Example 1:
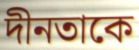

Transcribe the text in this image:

দীনতাকে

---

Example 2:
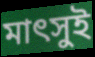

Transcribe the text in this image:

মাৎসুই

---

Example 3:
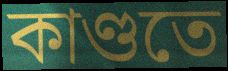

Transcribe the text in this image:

কাণ্ডতে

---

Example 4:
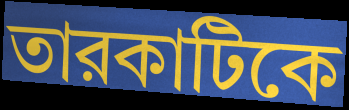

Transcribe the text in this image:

তারকাটিকে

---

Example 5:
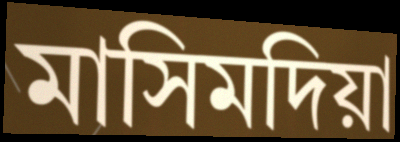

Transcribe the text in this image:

মাসিমদিয়া